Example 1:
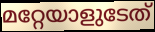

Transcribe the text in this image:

മറ്റേയാളുടേത്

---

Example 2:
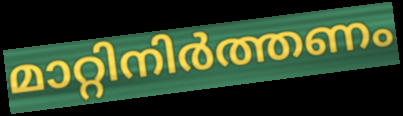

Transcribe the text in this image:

മാറ്റിനിർത്തണം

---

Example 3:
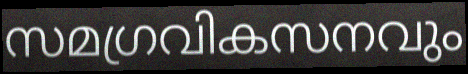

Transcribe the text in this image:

സമഗ്രവികസനവും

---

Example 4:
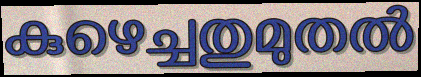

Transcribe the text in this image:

കുഴെച്ചതുമുതൽ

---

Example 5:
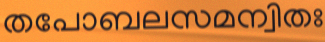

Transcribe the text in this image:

തപോബലസമന്വിതഃ